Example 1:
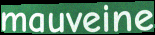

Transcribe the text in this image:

mauveine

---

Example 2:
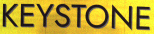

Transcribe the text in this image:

KEYSTONE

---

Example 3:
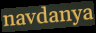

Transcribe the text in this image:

navdanya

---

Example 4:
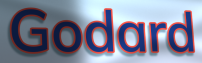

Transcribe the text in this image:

Godard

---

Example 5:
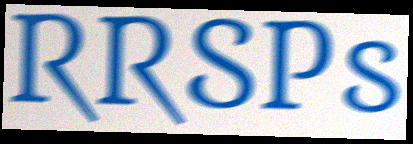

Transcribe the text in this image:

RRSPs